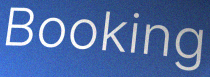
Booking